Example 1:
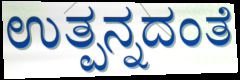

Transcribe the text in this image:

ಉತ್ಪನ್ನದಂತೆ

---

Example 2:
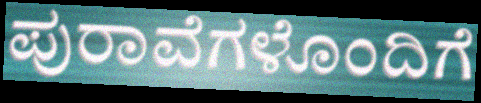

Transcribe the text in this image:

ಪುರಾವೆಗಳೊಂದಿಗೆ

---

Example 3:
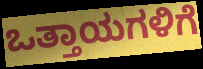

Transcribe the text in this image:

ಒತ್ತಾಯಗಳಿಗೆ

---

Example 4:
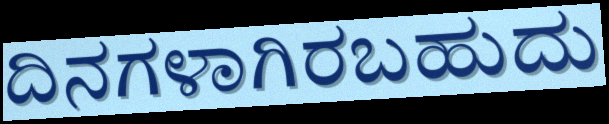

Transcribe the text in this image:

ದಿನಗಳಾಗಿರಬಹುದು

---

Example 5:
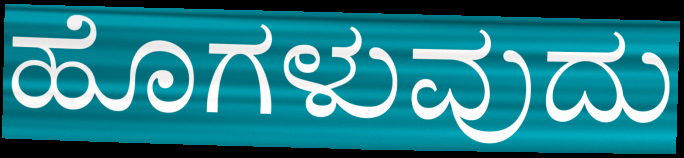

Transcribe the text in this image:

ಹೊಗಳುವುದು